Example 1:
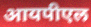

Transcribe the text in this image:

आयपीएल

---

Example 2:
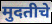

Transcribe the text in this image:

मुदतीचे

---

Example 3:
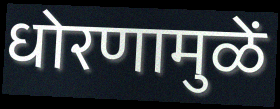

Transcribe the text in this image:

धोरणामुळें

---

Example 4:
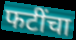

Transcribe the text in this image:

फटींचा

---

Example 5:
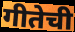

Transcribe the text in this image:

गीतेची